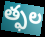
త్ఫల